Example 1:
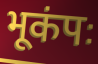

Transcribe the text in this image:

भूकंपः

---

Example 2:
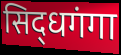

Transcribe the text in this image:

सिद्धगंगा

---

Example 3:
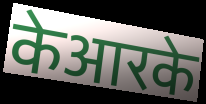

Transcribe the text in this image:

केआरके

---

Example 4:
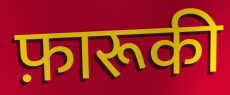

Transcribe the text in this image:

फ़ारूकी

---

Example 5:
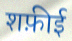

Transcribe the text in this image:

शफ़ीई